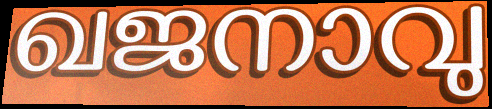
ഖജനാവു